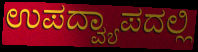
ಉಪದ್ವ್ಯಾಪದಲ್ಲಿ